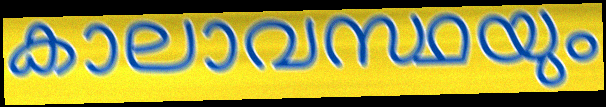
കാലാവസ്ഥയും